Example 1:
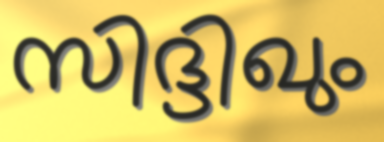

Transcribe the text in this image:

സിദ്ദിഖും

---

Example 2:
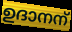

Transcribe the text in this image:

ഉദാനന്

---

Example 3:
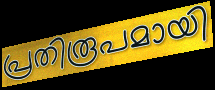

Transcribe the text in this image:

പ്രതിരൂപമായി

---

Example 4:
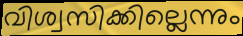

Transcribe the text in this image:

വിശ്വസിക്കില്ലെന്നും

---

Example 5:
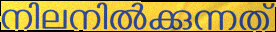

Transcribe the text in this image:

നിലനിൽക്കുന്നത്